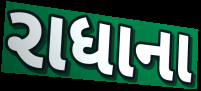
રાધાના